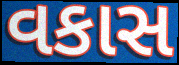
વકાસ